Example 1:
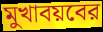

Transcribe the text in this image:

মুখাবয়বের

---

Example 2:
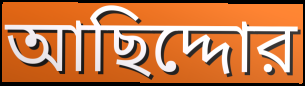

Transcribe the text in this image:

আছিদ্দোর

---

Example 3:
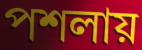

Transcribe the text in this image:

পশলায়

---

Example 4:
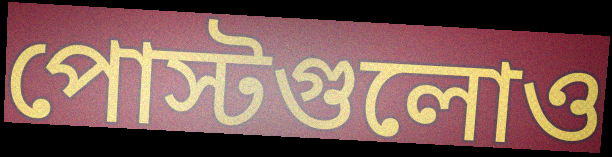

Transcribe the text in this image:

পোস্টগুলোও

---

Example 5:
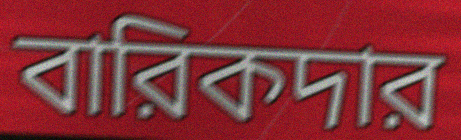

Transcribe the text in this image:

বারিকদার